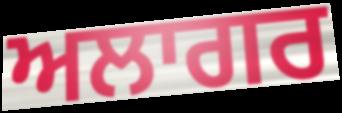
ਅਲਾਗਰ